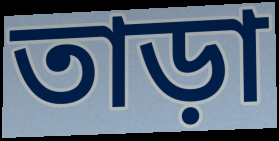
তাড়া